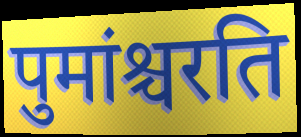
पुमांश्चरति